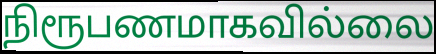
நிரூபணமாகவில்லை